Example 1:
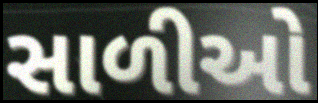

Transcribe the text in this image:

સાળીઓ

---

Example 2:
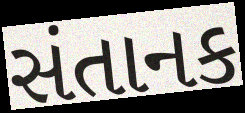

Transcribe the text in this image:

સંતાનક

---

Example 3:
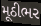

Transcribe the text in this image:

મૂઠીભર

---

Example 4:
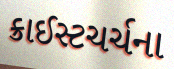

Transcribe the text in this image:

ક્રાઈસ્ટચર્ચના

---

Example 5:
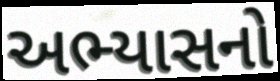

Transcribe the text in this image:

અભ્યાસનો